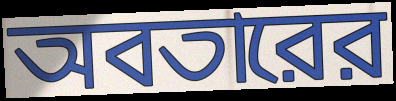
অবতারের